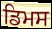
ਡਿਮਸ